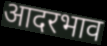
आदरभाव